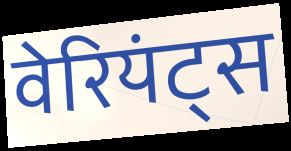
वेरियंट्स